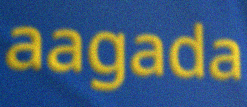
aagada